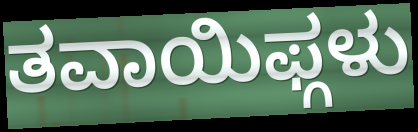
ತವಾಯಿಫ್ಗಳು